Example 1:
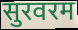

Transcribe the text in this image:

सुरवरम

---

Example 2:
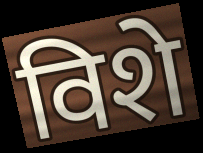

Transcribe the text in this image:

विशे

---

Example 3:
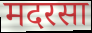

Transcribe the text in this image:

मदरसा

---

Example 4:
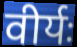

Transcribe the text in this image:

वीर्यः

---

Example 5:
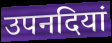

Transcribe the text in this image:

उपनदियां